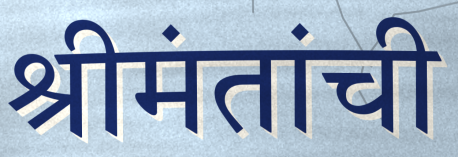
श्रीमंतांची